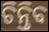
ଚିନ୍ତିବ